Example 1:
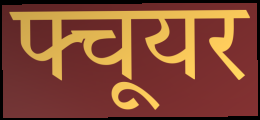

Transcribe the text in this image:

फ्चूयर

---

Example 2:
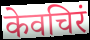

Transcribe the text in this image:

केवचिरं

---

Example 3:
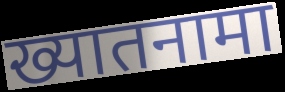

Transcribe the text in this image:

ख्यातनामा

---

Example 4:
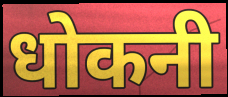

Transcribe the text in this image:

धोकनी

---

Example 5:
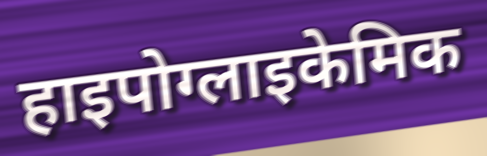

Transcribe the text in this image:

हाइपोग्लाइकेमिक